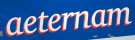
aeternam